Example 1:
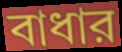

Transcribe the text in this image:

বাধার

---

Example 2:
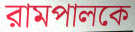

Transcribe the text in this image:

রামপালকে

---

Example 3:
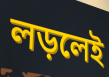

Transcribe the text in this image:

লড়লেই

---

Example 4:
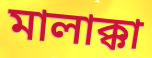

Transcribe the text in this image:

মালাক্কা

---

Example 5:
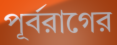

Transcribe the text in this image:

পূর্বরাগের